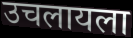
उचलायला